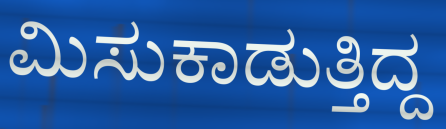
ಮಿಸುಕಾಡುತ್ತಿದ್ದ